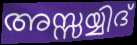
അസ്സയ്യിദ്